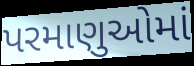
પરમાણુઓમાં